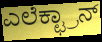
ಎಲೆಕ್ಟ್ರಾನ್